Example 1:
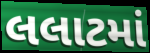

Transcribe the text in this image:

લલાટમાં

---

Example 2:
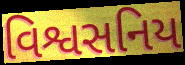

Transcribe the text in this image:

વિશ્વસનિય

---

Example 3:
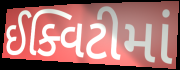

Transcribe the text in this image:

ઈક્વિટીમાં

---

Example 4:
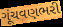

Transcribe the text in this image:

ગૂંચવણભરી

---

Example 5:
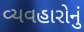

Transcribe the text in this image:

વ્યવહારોનું